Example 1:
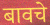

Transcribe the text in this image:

बावचे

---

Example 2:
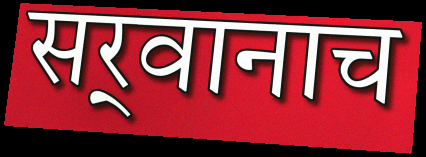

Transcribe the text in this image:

सर्वानाच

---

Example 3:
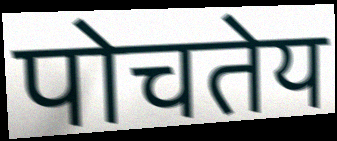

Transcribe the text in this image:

पोचतेय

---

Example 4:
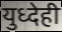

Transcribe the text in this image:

युध्देही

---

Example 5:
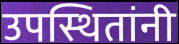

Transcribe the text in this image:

उपस्थितांनी